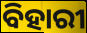
ବିହାରୀ